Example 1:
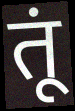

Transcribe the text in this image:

तूं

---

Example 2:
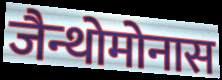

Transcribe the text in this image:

जैन्थोमोनास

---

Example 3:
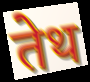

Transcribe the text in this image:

तेथ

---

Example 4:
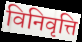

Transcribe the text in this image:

विनिवृत्ति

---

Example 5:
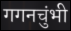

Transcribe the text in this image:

गगनचुंभी